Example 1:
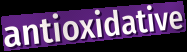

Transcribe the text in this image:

antioxidative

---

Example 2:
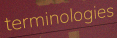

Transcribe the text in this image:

terminologies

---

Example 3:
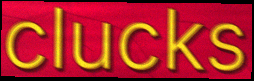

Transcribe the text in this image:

clucks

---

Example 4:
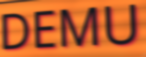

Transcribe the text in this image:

DEMU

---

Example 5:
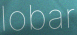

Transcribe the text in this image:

lobar